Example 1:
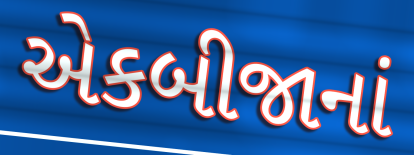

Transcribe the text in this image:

એકબીજાનાં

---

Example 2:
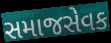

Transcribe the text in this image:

સમાજસેવક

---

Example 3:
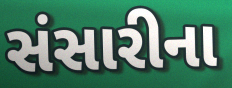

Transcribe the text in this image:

સંસારીના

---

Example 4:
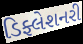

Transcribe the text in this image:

ડિફ્લેશનરી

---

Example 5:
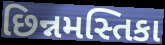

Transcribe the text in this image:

છિન્નમસ્તિકા